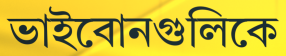
ভাইবোনগুলিকে